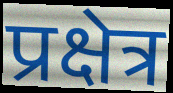
प्रक्षेत्र